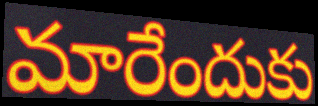
మారేందుకు